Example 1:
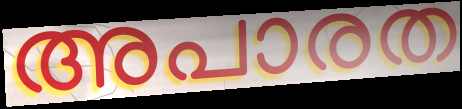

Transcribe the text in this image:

അപാരത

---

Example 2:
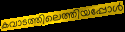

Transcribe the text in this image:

കവാടത്തിലെത്തിയപ്പോൾ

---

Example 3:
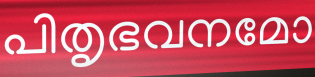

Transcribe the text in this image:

പിതൃഭവനമോ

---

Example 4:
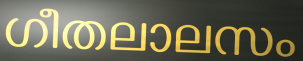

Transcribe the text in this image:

ഗീതലാലസം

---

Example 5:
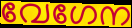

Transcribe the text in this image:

വേഗേന